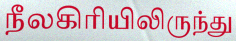
நீலகிரியிலிருந்து